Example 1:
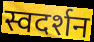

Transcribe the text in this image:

स्वदर्शन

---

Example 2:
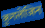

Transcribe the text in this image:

कुगलेजिन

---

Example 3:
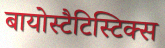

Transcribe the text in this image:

बायोस्टैटिस्टिक्स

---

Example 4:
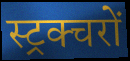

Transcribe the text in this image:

स्ट्रक्चरों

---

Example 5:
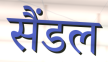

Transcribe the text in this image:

सैंडल